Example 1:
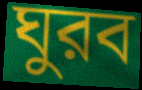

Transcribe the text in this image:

ঘুরব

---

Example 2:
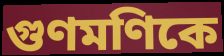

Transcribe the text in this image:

গুণমণিকে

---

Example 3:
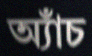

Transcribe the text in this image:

অ্যাঁচ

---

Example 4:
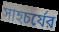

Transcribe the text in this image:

সাহচর্যের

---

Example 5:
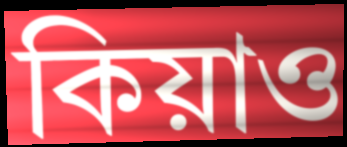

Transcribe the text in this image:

কিয়াও